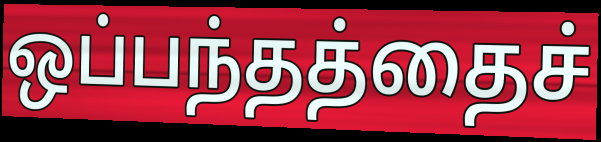
ஒப்பந்தத்தைச்